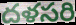
దళసరి